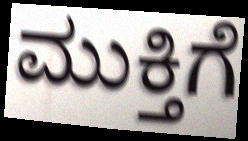
ಮುಕ್ತಿಗೆ